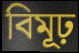
বিমূঢ়